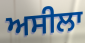
ਅਸੀਲਾ